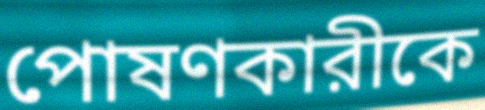
পোষণকারীকে